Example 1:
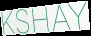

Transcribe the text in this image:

KSHAY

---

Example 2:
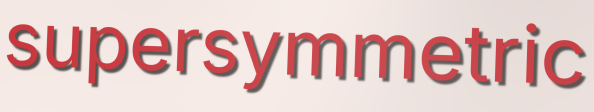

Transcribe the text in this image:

supersymmetric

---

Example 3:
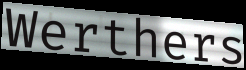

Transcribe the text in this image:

Werthers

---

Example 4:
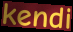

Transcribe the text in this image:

kendi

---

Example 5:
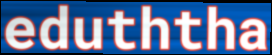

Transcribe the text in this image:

eduththa